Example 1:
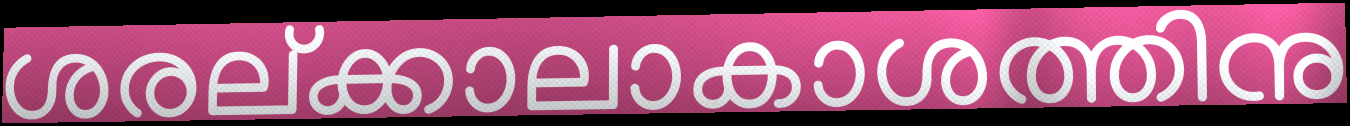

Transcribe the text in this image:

ശരല്ക്കാലാകാശത്തിനു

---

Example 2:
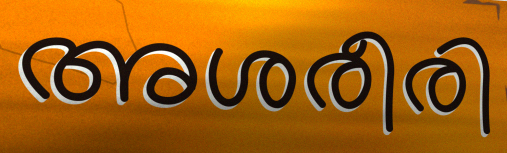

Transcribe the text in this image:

അശരീരി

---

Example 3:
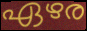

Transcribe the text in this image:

ഏഴര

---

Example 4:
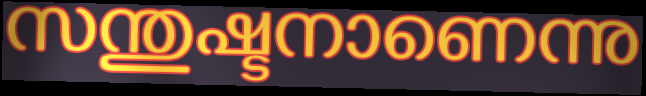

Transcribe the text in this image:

സന്തുഷ്ടനാണെന്നു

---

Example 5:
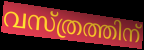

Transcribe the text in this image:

വസ്ത്രത്തിന്